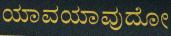
ಯಾವಯಾವುದೋ